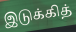
இடுக்கித்